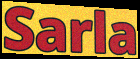
Sarla